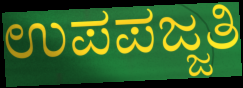
ಉಪಪಜ್ಜತಿ